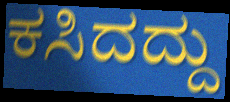
ಕಸಿದದ್ದು